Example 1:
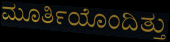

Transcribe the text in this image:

ಮೂರ್ತಿಯೊಂದಿತ್ತು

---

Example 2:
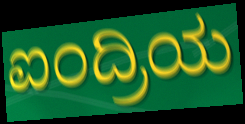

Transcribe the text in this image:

ಐಂದ್ರಿಯ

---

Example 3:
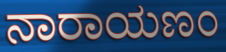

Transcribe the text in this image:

ನಾರಾಯಣಂ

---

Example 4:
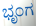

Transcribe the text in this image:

ಭೃಂಗ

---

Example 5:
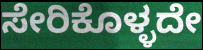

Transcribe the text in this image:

ಸೇರಿಕೊಳ್ಳದೇ